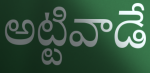
అట్టివాడే